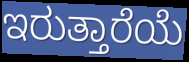
ಇರುತ್ತಾರೆಯೆ